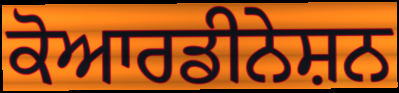
ਕੋਆਰਡੀਨੇਸ਼ਨ